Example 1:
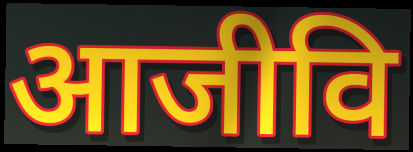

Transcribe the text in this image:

आजीवि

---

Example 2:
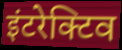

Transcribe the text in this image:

इंटरेक्टिव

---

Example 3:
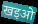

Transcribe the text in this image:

खइओ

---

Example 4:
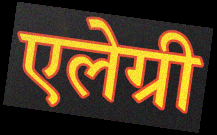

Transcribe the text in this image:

एलेग्री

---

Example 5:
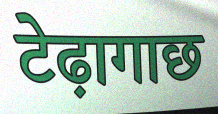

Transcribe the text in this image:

टेढ़ागाछ